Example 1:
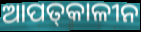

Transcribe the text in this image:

ଆପତ୍‌କାଳୀନ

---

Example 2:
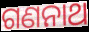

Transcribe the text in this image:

ଗଣନାଥ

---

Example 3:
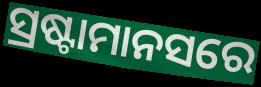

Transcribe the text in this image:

ସ୍ରଷ୍ଟାମାନସରେ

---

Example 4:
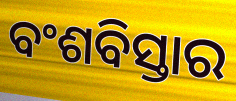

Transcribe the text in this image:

ବଂଶବିସ୍ତାର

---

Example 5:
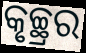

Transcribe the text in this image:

କୃଚ୍ଛ୍ରର